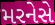
મરનેસે